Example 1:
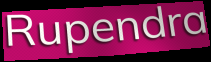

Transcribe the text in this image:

Rupendra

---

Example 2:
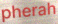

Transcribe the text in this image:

pherah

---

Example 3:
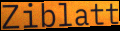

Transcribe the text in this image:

Ziblatt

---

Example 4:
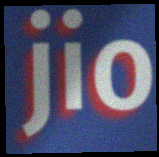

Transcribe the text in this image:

jio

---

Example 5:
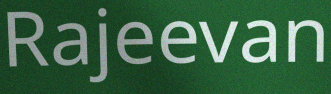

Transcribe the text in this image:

Rajeevan